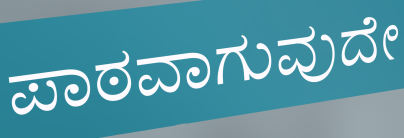
ಪಾಠವಾಗುವುದೇ